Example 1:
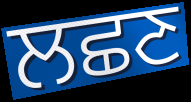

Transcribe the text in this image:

ਲਛਣ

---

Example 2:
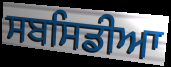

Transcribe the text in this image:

ਸਬਸਿਡੀਆ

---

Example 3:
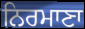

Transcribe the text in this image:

ਨਿਰਮਾਣਾ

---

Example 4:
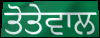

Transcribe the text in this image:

ਤੋਤੇਵਾਲ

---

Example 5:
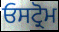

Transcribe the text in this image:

ਓਸਟ੍ਰੋਮ